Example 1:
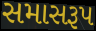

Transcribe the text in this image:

સમાસરૂપ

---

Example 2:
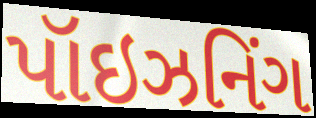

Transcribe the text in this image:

પૉઇઝનિંગ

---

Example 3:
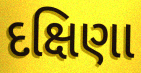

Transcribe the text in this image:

દક્ષિણા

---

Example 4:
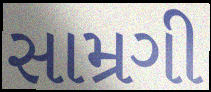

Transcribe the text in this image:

સામ્રગી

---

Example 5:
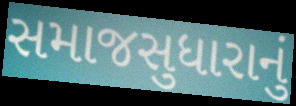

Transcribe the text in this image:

સમાજસુધારાનું